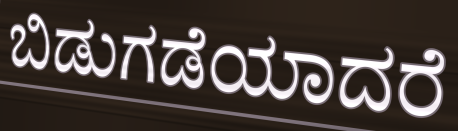
ಬಿಡುಗಡೆಯಾದರೆ